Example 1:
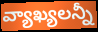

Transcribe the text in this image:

వ్యాఖ్యలన్నీ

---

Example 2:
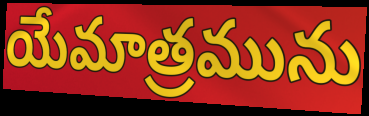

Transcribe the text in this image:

యేమాత్రమును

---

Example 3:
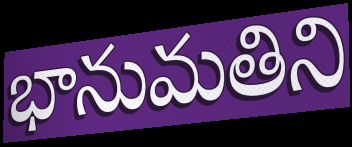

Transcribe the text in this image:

భానుమతిని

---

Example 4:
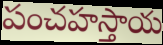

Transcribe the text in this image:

పంచహస్తాయ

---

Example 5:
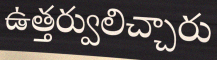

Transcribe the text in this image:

ఉత్తర్వులిచ్చారు